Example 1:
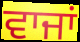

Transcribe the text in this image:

ਵਾਜਾਂ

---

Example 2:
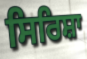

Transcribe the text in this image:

ਸਿਰਿਸ਼ਾ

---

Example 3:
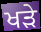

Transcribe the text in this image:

ਖਡ਼ੇ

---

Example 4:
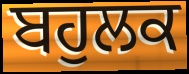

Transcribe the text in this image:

ਬਹੁਲਕ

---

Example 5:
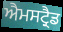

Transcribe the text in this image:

ਐਮਸਟ੍ਰੈਡ